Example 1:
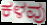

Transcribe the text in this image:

ಕಳವು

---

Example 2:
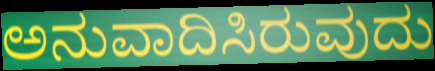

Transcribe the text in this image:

ಅನುವಾದಿಸಿರುವುದು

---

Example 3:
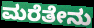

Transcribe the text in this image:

ಮರೆತೇನು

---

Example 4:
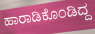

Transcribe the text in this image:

ಹಾರಾಡಿಕೊಂಡಿದ್ದ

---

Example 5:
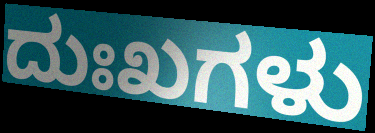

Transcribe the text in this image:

ದುಃಖಗಳು